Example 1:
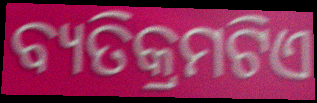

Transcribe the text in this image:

ବ୍ୟତିକ୍ରମଟିଏ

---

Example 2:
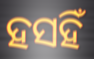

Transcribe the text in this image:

ହସହିଁ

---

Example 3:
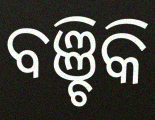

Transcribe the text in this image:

ବଞ୍ଚିକି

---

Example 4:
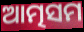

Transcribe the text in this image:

ଆତ୍ମସମ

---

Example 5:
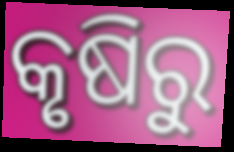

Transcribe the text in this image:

କୃଷିରୁ